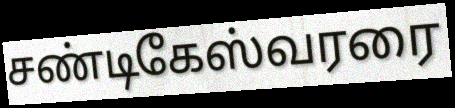
சண்டிகேஸ்வரரை